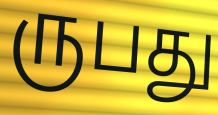
ருபது